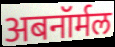
अबनॉर्मल